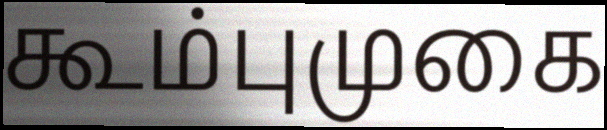
கூம்புமுகை